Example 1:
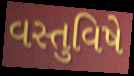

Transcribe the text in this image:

વસ્તુવિષે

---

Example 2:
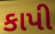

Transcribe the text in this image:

કાપી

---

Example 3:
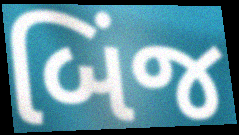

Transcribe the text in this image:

બિંજ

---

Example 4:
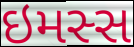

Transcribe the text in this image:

ઇમસ્સ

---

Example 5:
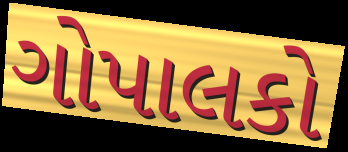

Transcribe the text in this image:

ગોપાલકો